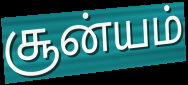
சூன்யம்